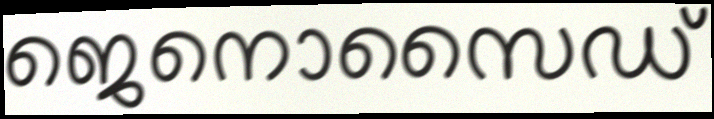
ജെനൊസൈഡ്